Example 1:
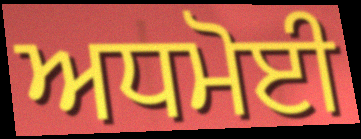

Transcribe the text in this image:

ਅਧਮੋਈ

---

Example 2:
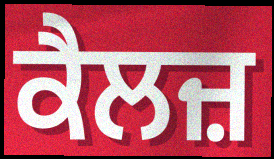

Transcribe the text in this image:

ਕੈਲਜ਼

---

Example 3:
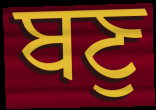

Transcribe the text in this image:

ਬਣੁ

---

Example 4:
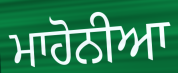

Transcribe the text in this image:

ਮਾਹੋਨੀਆ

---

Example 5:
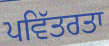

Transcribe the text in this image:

ਪਵਿੱਤਰਤਾ